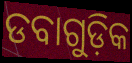
ଡବାଗୁଡ଼ିକ